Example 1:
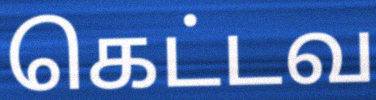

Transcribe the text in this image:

கெட்டவ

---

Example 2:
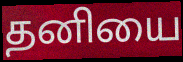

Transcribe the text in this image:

தனியை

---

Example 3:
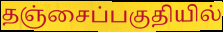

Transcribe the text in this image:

தஞ்சைப்பகுதியில்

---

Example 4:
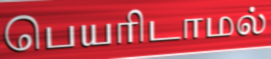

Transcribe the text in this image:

பெயரிடாமல்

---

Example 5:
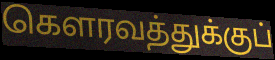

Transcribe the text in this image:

கௌரவத்துக்குப்